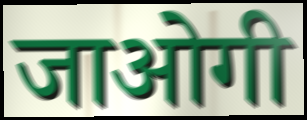
जाओगी